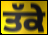
ਤੱਕੇ